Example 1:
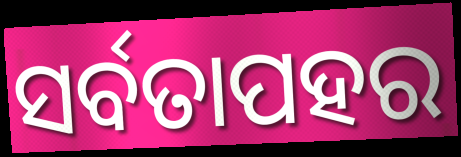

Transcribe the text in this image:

ସର୍ବତାପହର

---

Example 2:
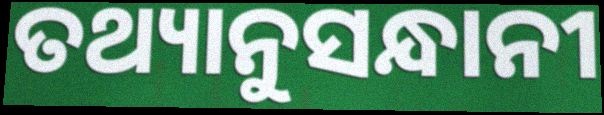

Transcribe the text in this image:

ତଥ୍ୟାନୁସନ୍ଧାନୀ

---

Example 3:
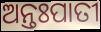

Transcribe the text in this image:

ଅନ୍ତଃପାତୀ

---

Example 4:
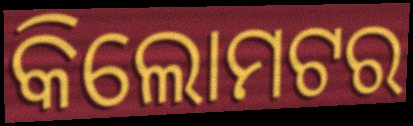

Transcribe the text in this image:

କିଲୋମଟର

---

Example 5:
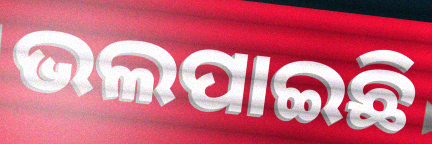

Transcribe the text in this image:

ଭଲପାଇଛି